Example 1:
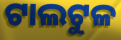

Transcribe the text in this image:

ଟାଲଟୁଳ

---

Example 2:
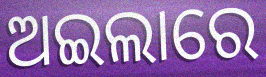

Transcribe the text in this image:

ଅଇଲାରେ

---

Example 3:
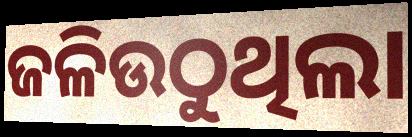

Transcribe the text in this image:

ଜଳିଉଠୁଥିଲା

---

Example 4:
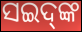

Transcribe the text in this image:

ସଇଦ୍‌ଙ୍କ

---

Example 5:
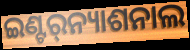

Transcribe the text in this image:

ଇଣ୍ଟର୍‌ନ୍ୟାଶନାଲ